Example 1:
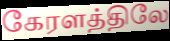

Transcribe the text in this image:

கேரளத்திலே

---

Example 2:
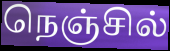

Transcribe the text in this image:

நெஞ்சில்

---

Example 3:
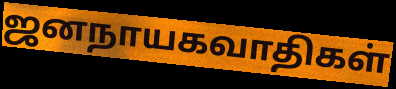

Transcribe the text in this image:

ஜனநாயகவாதிகள்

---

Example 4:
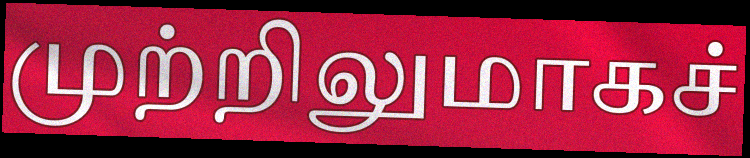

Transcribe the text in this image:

முற்றிலுமாகச்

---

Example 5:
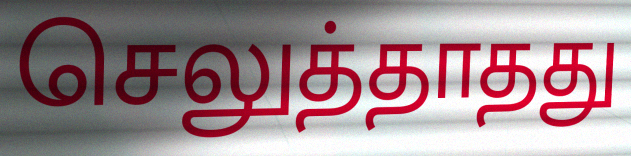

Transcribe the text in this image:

செலுத்தாதது